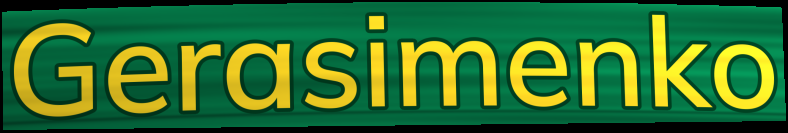
Gerasimenko